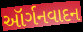
ઑર્ગનવાદન